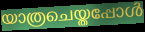
യാത്രചെയ്തപ്പോൾ